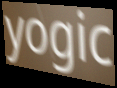
yogic